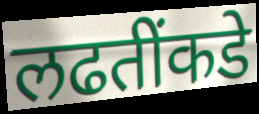
लढतींकडे